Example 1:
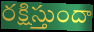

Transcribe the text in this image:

రక్షిస్తుందా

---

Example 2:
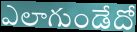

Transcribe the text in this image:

ఎలాగుండేదో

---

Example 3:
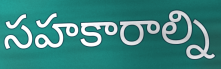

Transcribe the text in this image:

సహకారాల్ని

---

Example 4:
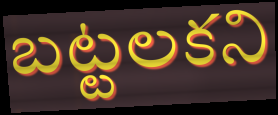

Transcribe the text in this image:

బట్టలకని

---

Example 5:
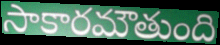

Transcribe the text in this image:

సాకారమౌతుంది